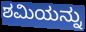
ಶಮಿಯನ್ನು